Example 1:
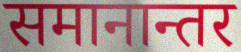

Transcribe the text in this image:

समानान्तर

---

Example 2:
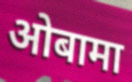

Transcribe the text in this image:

ओबामा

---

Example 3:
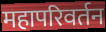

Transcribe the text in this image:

महापरिवर्तन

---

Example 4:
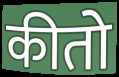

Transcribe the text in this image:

कीतो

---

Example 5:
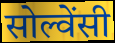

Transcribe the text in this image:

सोल्वेंसी